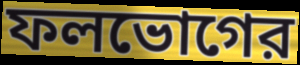
ফলভোগের